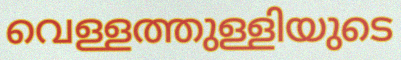
വെള്ളത്തുള്ളിയുടെ